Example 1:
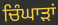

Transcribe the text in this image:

ਚਿੰਘਾੜਾਂ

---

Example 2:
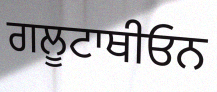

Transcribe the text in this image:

ਗਲੂਟਾਥੀਓਨ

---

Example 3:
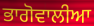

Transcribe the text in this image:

ਭਾਗੋਵਾਲੀਆ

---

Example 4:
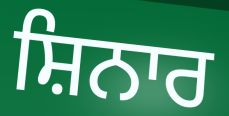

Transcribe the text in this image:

ਸ਼ਿਨਾਰ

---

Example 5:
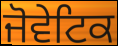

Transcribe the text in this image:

ਜੋਵੇਟਿਕ